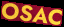
OSAC